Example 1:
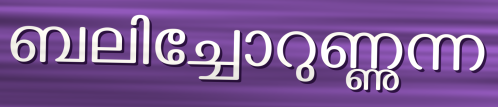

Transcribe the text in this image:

ബലിച്ചോറുണ്ണുന്ന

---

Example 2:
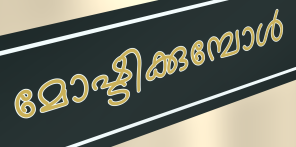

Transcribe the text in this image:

മോഷ്ടിക്കുമ്പോൾ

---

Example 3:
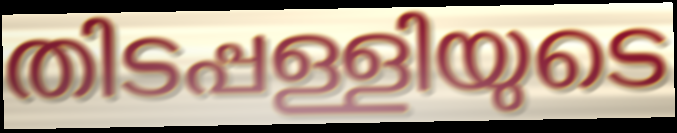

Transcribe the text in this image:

തിടപ്പള്ളിയുടെ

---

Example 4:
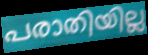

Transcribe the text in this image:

പരാതിയില്ല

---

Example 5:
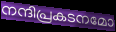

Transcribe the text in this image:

നന്ദിപ്രകടനമോ